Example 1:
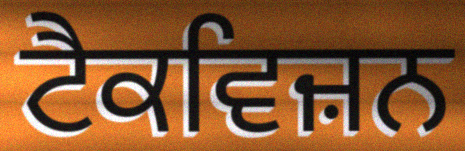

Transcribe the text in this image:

ਟੈਕਵਿਜ਼ਨ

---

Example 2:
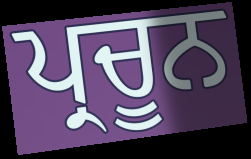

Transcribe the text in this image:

ਪ੍ਰਚੂਨ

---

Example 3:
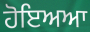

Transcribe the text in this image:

ਹੋਇਅਆ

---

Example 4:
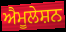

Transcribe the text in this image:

ਐਮੂਲੇਸ਼ਨ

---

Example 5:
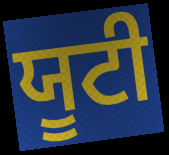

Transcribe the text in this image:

ਯੂਟੀ